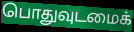
பொதுவுடமைக்